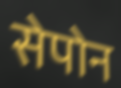
सेपोन